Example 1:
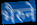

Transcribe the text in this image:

भैरुने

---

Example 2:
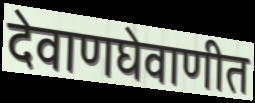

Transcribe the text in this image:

देवाणघेवाणीत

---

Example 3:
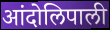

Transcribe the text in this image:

आंदोलिपाली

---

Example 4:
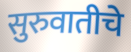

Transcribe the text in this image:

सुरुवातीचे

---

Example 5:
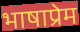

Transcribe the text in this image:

भाषाप्रेम